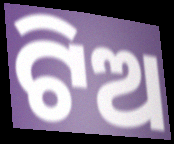
ଟିଅ